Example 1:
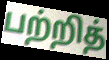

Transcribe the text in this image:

பற்றித்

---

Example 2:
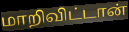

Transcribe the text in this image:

மாறிவிட்டான்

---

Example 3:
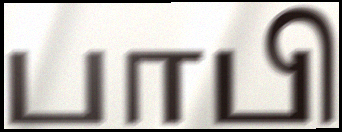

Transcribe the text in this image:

பாபி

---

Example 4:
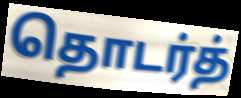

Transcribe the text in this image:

தொடர்த்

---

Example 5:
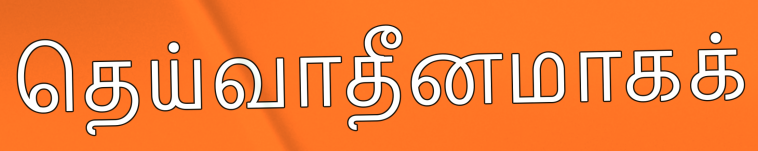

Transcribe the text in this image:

தெய்வாதீனமாகக்